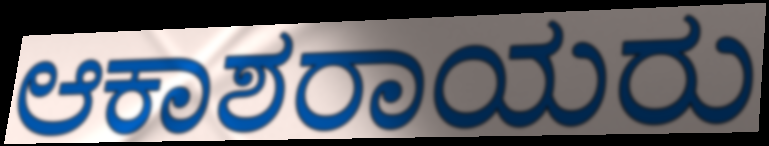
ಆಕಾಶರಾಯರು